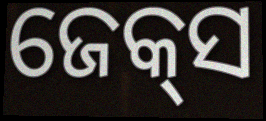
ଜେକ୍‍ସ